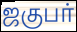
ஜகுபர்